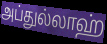
அப்துல்லாஹ்